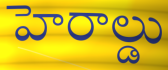
హెరాల్డు